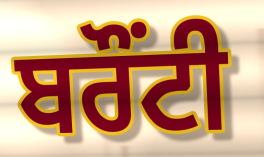
ਬਰੌਂਟੀ